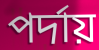
পর্দায়